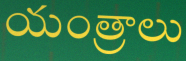
యంత్రాలు